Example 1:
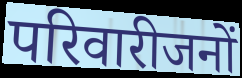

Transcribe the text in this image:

परिवारीजनों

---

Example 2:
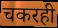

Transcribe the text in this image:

चकरही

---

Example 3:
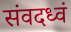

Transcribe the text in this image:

संवदध्वं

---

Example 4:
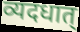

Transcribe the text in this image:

व्यदधात्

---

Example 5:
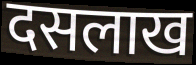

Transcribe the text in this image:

दसलाख